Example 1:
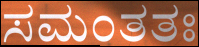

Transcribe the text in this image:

ಸಮಂತತಃ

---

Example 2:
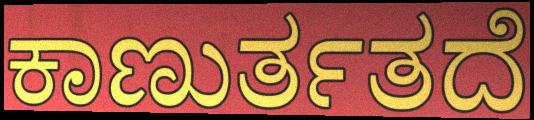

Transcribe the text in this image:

ಕಾಣುರ್ತತದೆ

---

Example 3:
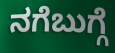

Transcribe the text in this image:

ನಗೆಬುಗ್ಗೆ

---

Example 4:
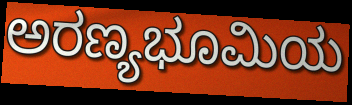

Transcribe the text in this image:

ಅರಣ್ಯಭೂಮಿಯ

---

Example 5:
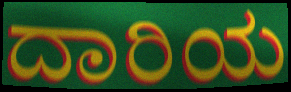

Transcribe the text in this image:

ದಾರಿಯ